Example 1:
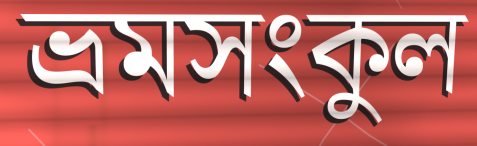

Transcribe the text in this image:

ভ্রমসংকুল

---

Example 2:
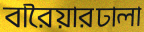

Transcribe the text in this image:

বারৈয়ারঢালা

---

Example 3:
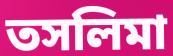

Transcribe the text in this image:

তসলিমা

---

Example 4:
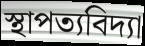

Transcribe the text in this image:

স্থাপত্যবিদ্যা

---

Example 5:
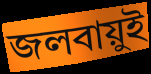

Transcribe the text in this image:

জলবায়ুই